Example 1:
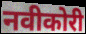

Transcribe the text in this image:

नवीकोरी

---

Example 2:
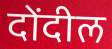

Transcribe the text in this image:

दोंदील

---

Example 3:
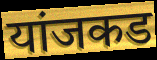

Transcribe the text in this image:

यांजकड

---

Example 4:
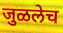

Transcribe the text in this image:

जुळलेच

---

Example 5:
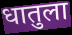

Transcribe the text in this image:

धातुला